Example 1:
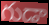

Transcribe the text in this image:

గుడా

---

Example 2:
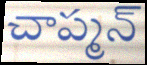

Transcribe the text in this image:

చాప్మన్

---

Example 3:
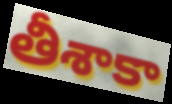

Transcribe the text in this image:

తీశాకా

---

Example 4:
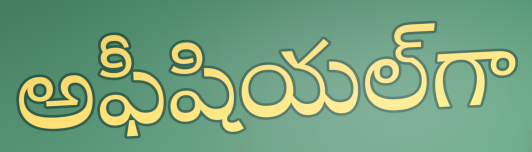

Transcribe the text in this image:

అఫీషియల్‌గా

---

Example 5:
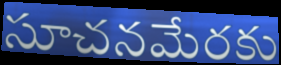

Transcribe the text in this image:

సూచనమేరకు